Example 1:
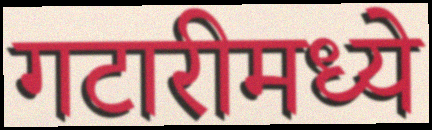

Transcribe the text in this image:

गटारीमध्ये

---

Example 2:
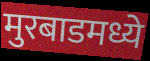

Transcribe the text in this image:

मुरबाडमध्ये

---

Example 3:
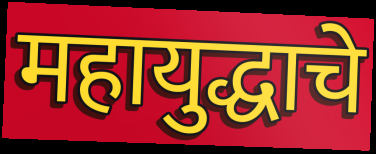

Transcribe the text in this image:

महायुद्धाचे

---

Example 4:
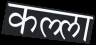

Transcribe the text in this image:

कल्ला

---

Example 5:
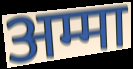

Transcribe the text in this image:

अम्मा